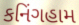
કનિંગહામ